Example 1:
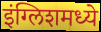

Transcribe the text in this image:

इंग्लिशमध्ये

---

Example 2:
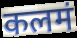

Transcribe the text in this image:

कलमं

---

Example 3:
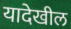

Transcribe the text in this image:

यादेखील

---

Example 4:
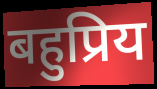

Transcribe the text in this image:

बहुप्रिय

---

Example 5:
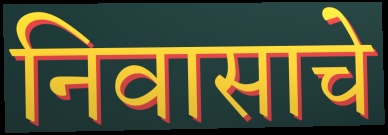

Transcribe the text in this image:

निवासाचे